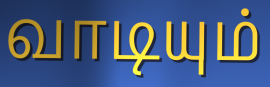
வாடியும்